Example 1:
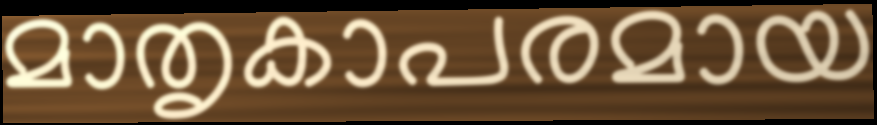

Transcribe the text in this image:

മാതൃകാപരമായ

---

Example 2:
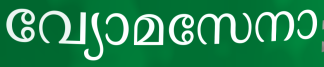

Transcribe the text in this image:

വ്യോമസേനാ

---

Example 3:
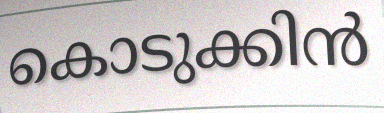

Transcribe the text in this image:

കൊടുക്കിൻ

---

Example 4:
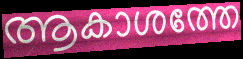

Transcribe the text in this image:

ആകാശത്തേ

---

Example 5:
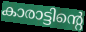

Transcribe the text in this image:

കാരാട്ടിന്റെ